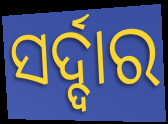
ସର୍ଦ୍ଦାର